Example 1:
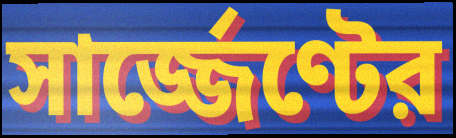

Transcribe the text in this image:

সার্জ্জেণ্টের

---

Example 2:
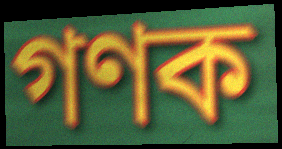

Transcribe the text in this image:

গণক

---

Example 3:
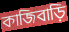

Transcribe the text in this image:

কাজিবাড়ি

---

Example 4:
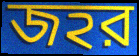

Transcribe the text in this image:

জহর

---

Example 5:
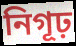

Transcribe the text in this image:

নিগূঢ়